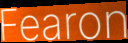
Fearon